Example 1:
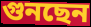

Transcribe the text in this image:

গুনছেন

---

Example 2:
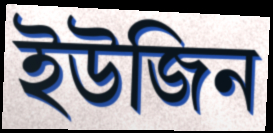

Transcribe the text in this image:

ইউজিন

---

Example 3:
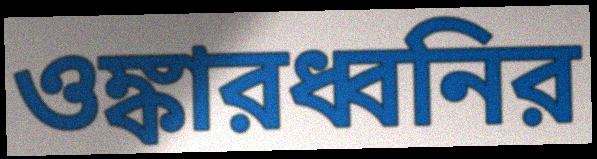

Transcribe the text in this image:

ওঙ্কারধ্বনির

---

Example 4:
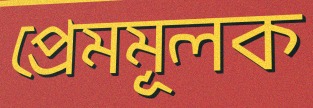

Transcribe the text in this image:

প্রেমমূলক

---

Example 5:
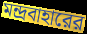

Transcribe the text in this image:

মন্দ্রবাহারের